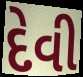
દેવી